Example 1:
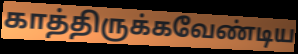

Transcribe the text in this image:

காத்திருக்கவேண்டிய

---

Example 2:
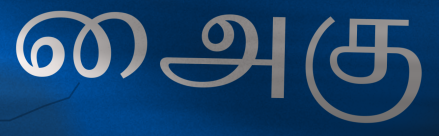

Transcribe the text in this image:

அைகு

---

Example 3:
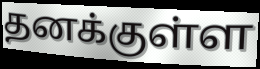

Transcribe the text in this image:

தனக்குள்ள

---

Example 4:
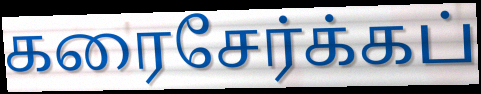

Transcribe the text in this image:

கரைசேர்க்கப்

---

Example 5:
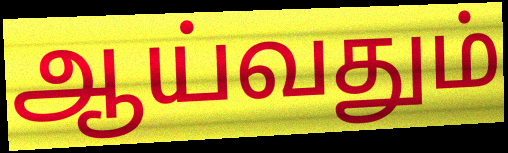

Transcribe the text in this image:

ஆய்வதும்